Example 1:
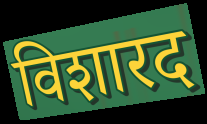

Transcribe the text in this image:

विशारद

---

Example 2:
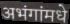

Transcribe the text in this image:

अभंगांमधे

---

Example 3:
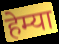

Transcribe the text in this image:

हेम्या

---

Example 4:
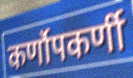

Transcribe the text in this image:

कर्णोपकर्णी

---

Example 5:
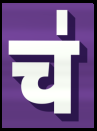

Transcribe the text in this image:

च॑